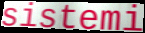
sistemi